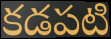
కడపటి